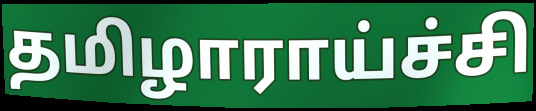
தமிழாராய்ச்சி